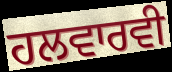
ਹਲਵਾਰਵੀ